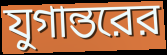
যুগান্তরের